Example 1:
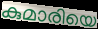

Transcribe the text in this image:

കുമാരിയെ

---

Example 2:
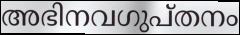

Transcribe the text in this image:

അഭിനവഗുപ്തനം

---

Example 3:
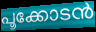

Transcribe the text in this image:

പൂക്കോടൻ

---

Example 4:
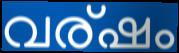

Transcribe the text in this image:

വര്ഷം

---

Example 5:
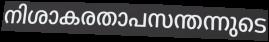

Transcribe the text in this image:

നിശാകരതാപസന്തന്നുടെ